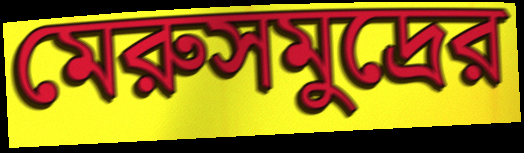
মেরুসমুদ্রের